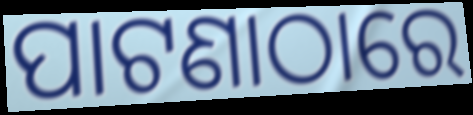
ପାଟଣାଠାରେ